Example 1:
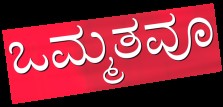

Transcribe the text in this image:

ಒಮ್ಮತವೂ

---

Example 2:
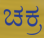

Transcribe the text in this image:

ಚಕ್ರ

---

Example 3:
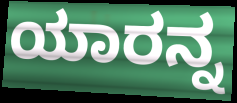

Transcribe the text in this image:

ಯಾರನ್ನ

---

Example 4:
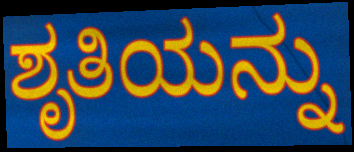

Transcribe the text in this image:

ಶೃತಿಯನ್ನು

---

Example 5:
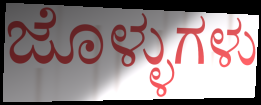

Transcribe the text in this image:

ಜೊಳ್ಳುಗಳು